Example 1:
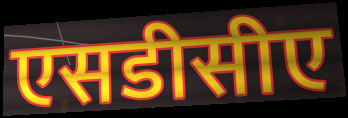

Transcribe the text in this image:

एसडीसीए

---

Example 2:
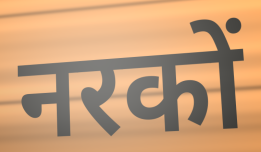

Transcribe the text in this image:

नरकों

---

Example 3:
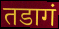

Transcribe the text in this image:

तडागं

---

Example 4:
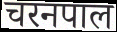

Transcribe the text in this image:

चरनपाल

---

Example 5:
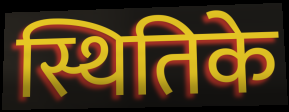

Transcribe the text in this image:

स्थितिके